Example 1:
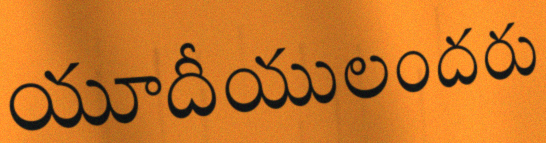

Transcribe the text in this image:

యూదీయులందరు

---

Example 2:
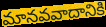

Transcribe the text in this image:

మానవవాదానికి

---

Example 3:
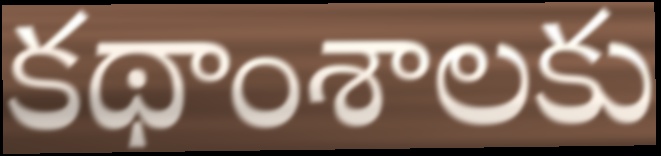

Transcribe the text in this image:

కథాంశాలకు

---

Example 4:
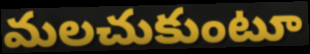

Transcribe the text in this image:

మలచుకుంటూ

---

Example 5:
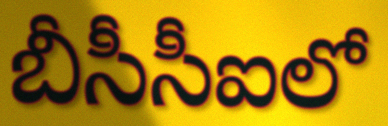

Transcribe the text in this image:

బీసీసీఐలో